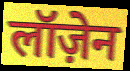
लॉज़ेन